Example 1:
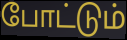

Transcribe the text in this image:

போட்டும்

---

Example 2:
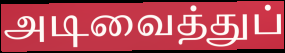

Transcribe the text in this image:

அடிவைத்துப்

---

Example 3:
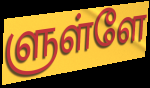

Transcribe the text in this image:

ளுள்ளே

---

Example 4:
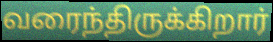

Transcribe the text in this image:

வரைந்திருக்கிறார்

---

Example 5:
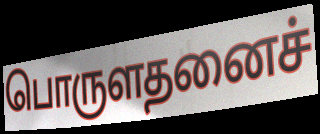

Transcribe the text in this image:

பொருளதனைச்